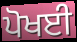
ਪੋਖਈ